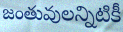
జంతువులన్నిటికీ